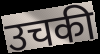
उचकी